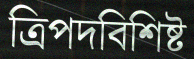
ত্রিপদবিশিষ্ট